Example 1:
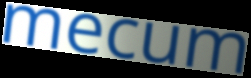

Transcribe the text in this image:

mecum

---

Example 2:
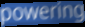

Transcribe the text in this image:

powering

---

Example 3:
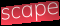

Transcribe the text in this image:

scape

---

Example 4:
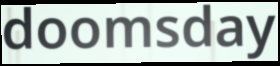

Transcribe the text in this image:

doomsday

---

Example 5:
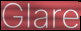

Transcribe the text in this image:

Glare